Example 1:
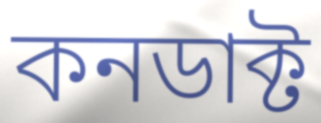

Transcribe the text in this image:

কনডাক্ট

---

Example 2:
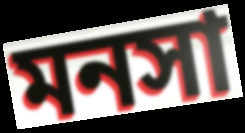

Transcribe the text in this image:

মনসা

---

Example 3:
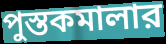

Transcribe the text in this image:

পুস্তকমালার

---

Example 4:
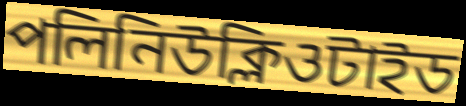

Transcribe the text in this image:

পলিনিউক্লিওটাইড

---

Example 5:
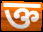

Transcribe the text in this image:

ক্ত